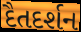
દૈતદર્શન